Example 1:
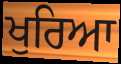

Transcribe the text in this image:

ਖੁਰਿਆ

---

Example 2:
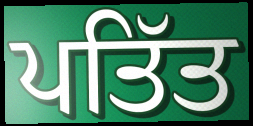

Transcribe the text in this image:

ਪਤਿੱਤ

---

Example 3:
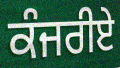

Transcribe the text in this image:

ਕੰਜਰੀਏ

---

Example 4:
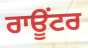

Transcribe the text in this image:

ਰਾਊਂਟਰ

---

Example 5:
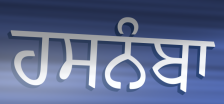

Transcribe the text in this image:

ਹਸਨੰਬਾ